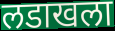
लडाखला